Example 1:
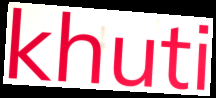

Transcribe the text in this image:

khuti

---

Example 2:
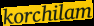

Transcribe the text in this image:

korchilam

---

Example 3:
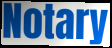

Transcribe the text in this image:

Notary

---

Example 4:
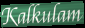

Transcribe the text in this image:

Kalkulam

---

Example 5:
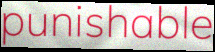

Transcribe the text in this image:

punishable